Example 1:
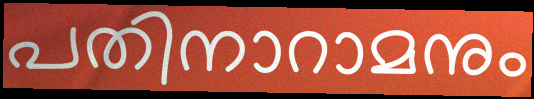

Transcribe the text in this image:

പതിനാറാമനും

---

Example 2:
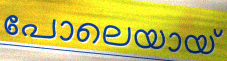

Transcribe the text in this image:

പോലെയായ്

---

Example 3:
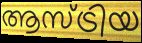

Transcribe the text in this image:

ആസ്ട്രിയ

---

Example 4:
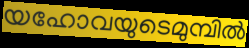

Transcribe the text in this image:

യഹോവയുടെമുമ്പിൽ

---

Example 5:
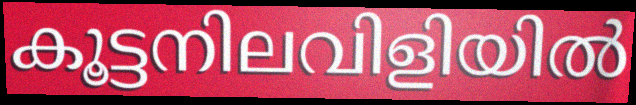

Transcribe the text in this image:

കൂട്ടനിലവിളിയിൽ